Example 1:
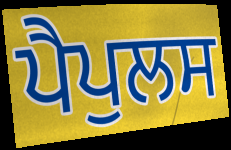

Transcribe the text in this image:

ਪੈਪੁਲਸ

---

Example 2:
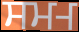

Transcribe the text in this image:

ਸਮ੍ਮ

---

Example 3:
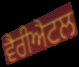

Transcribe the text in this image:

ਵੈਰੀਐਟਲ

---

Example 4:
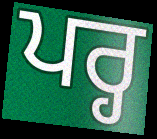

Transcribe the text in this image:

ਪਰ੍ਹ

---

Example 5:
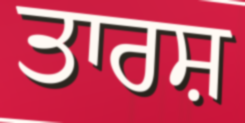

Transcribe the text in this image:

ਤਾਰਸ਼